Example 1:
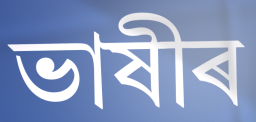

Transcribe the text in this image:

ভাষীৰ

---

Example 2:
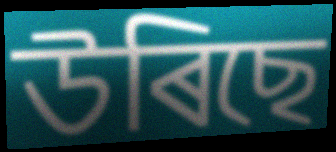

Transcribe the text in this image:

উৰিছে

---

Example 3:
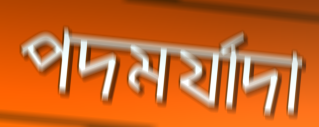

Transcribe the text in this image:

পদমৰ্যাদা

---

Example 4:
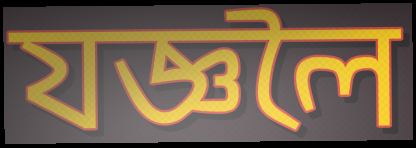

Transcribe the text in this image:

যজ্ঞলৈ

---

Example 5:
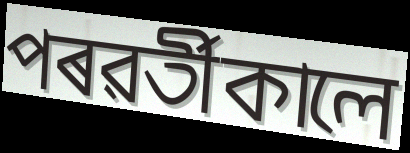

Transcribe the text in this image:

পৰৱৰ্তীকালে